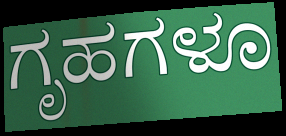
ಗೃಹಗಳೂ